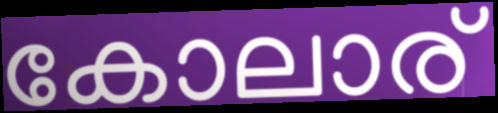
കോലാര്